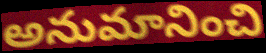
అనుమానించి